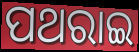
ପଥରାଇ